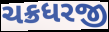
ચક્રધરજી